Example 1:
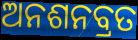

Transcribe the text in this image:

ଅନଶନବ୍ରତ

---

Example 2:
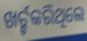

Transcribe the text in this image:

ଖର୍ଚ୍ଚକରିଥିଲେ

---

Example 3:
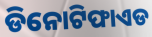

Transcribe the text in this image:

ଡିନୋଟିଫାଏଡ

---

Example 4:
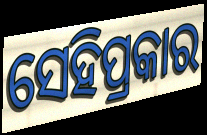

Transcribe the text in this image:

ସେହିପ୍ରକାର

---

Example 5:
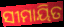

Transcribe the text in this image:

ସୀମାୟିତ